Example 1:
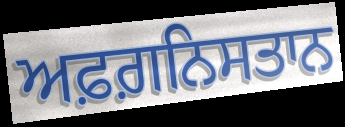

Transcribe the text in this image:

ਅਫ਼ਗ਼ਨਿਸਤਾਨ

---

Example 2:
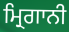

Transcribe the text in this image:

ਮ੍ਰਿਗਾਨੀ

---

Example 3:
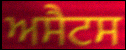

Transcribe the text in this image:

ਅਸੈਟਸ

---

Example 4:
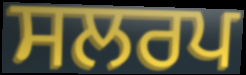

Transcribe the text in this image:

ਸਲਰਪ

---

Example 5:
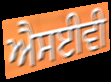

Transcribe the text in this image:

ਐਸਈਵੀ